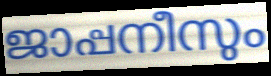
ജാപ്പനീസും